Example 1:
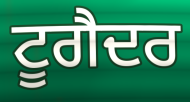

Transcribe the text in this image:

ਟੂਗੈਦਰ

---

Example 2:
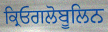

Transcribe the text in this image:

ਕ੍ਰਿਓਗਲੋਬੂਲਿਨ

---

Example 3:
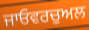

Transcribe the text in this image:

ਜਾਓਵਰਚੁਅਲ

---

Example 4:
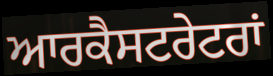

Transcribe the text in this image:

ਆਰਕੈਸਟਰੇਟਰਾਂ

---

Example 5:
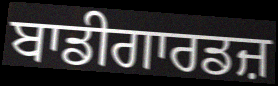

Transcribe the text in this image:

ਬਾਡੀਗਾਰਡਜ਼